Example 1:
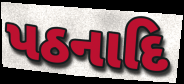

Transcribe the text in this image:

પઠનાદિ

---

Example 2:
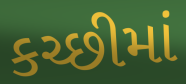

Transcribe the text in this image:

કચ્છીમાં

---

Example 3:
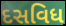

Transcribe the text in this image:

દસવિધ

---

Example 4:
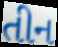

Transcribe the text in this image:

તીન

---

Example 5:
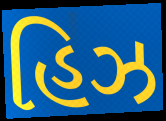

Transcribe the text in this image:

હિઝ